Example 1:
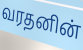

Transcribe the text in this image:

வரதனின்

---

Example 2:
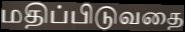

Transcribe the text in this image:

மதிப்பிடுவதை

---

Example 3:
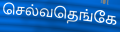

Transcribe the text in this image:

செல்வதெங்கே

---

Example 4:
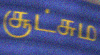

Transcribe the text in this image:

சூட்சும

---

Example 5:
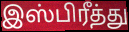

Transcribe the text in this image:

இஸ்பிரீத்து